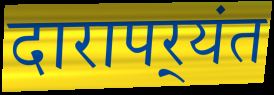
दारापर्यंत